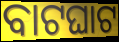
ବାଟଘାଟ